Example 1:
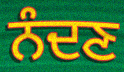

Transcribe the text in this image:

ਨੰਦਣ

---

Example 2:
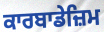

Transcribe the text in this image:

ਕਾਰਬਾਡੇਜ਼ਿਮ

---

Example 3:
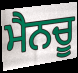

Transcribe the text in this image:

ਮੈਨਚੂ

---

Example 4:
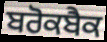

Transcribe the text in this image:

ਬਰੋਕਬੈਕ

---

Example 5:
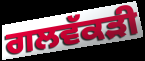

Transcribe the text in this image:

ਗਲਵੱਕੜੀ